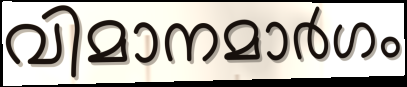
വിമാനമാർഗം